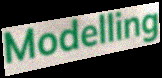
Modelling